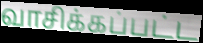
வாசிக்கப்பட்ட